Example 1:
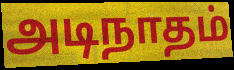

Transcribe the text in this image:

அடிநாதம்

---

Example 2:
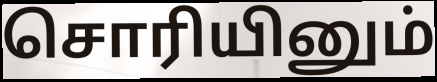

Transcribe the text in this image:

சொரியினும்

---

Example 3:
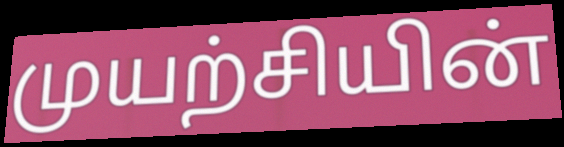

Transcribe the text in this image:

முயற்சியின்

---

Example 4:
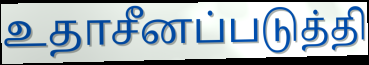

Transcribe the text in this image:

உதாசீனப்படுத்தி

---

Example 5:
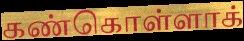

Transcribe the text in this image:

கண்கொள்ளாக்